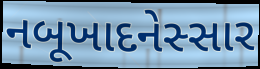
નબૂખાદનેસ્સાર